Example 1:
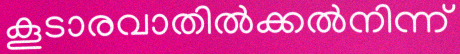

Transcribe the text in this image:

കൂടാരവാതിൽക്കൽനിന്ന്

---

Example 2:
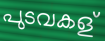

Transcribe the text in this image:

പുടവകള്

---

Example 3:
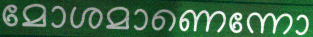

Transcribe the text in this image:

മോശമാണെന്നോ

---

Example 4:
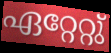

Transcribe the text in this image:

ഏറ്റേറ്റു്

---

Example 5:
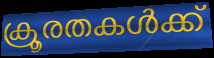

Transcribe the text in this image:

ക്രൂരതകൾക്ക്